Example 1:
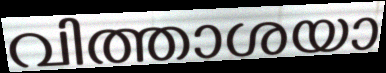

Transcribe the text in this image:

വിത്താശയാ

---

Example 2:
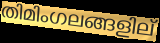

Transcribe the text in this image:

തിമിംഗലങ്ങളില്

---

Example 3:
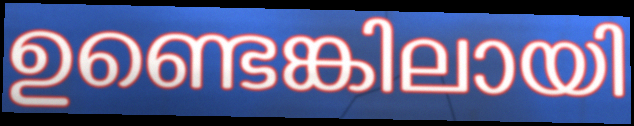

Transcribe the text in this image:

ഉണ്ടെങ്കിലായി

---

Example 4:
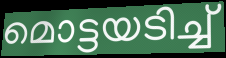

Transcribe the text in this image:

മൊട്ടയടിച്ച്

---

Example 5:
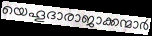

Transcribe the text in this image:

യെഹൂദാരാജാക്കന്മാർ